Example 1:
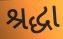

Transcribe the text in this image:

શ્રદ્ધા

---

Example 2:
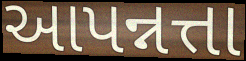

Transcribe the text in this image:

આપન્નત્તા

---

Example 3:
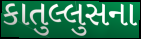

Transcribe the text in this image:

કાતુલ્લુસના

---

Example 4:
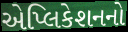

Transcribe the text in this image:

એપ્લિકેશનનો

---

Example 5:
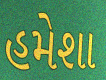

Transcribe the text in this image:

હમેશા